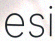
esi